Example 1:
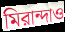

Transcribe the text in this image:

মিরান্দাও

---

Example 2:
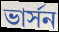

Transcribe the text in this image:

ভার্সন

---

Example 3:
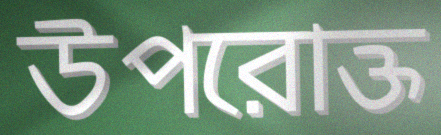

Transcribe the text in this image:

উপরোক্ত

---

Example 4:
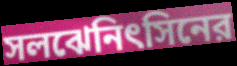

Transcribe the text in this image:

সলঝেনিৎসিনের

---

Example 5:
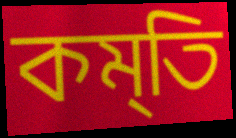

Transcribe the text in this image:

কম্‌তি